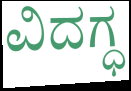
ವಿದಗ್ಧ